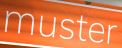
muster